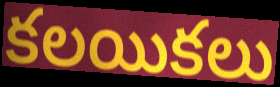
కలయికలు